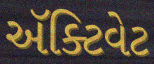
ઍક્ટિવેટ